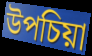
উপচিয়া